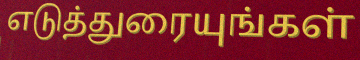
எடுத்துரையுங்கள்